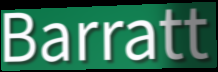
Barratt